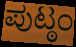
ಪುಟ್ಠಂ